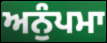
ਅਨੁੰਪਮਾ